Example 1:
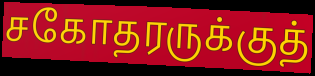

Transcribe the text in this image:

சகோதரருக்குத்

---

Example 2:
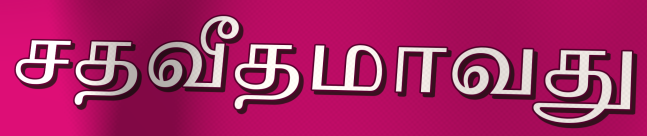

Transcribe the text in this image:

சதவீதமாவது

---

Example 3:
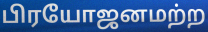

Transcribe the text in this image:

பிரயோஜனமற்ற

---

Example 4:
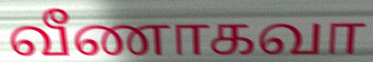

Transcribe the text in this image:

வீணாகவா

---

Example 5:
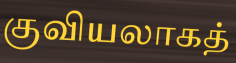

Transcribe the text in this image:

குவியலாகத்